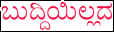
ಬುದ್ದಿಯಿಲ್ಲದ